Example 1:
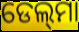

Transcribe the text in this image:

ଡେଲ୍‍ମା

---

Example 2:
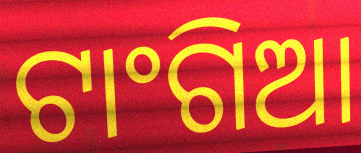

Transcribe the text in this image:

ଟାଂଗିଆ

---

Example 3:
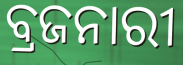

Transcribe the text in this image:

ବ୍ରଜନାରୀ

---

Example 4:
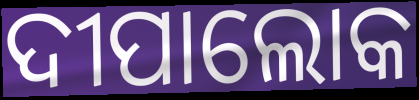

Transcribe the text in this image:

ଦୀପାଲୋକ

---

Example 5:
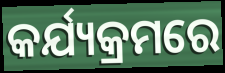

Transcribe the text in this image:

କର୍ଯ୍ୟକ୍ରମରେ